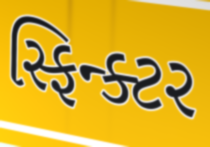
સ્ફિન્ક્ટર